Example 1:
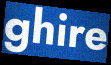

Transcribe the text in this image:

ghire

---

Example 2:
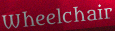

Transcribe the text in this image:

Wheelchair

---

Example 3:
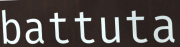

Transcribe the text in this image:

battuta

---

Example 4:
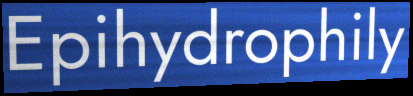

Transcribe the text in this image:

Epihydrophily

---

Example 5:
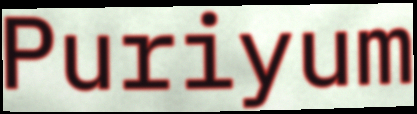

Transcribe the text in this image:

Puriyum